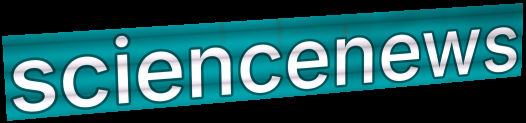
sciencenews